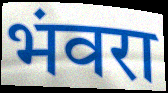
भंवरा